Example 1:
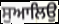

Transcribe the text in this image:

ਸੁਆਲਿਉ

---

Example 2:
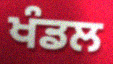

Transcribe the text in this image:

ਖੰਡਲ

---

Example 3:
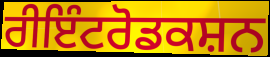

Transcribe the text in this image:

ਰੀਇੰਟਰੋਡਕਸ਼ਨ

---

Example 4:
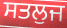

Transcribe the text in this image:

ਸਤਲੁਜ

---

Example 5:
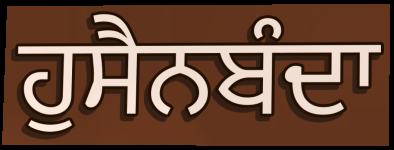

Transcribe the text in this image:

ਹੁਸੈਨਬੰਦਾ